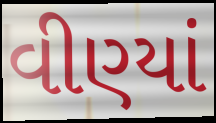
વીણ્યાં